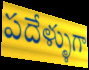
పదేళ్ళుగా